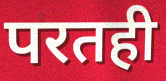
परतही